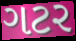
ગટર